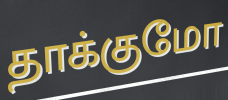
தாக்குமோ